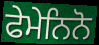
ਫੇਮੇਨਿਨੋ